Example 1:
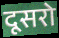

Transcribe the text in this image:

दूसरो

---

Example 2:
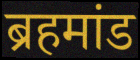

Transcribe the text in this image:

ब्रहमांड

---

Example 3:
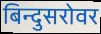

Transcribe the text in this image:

बिन्दुसरोवर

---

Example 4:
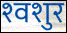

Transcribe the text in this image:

श्वशुर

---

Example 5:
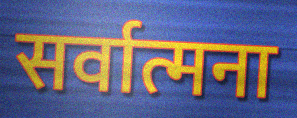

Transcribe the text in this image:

सर्वात्मना